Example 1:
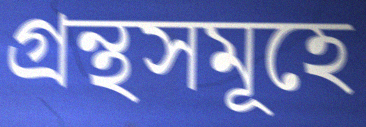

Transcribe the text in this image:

গ্ৰন্থসমূহে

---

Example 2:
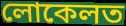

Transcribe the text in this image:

লোকেলত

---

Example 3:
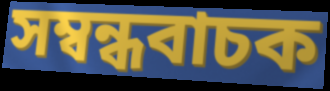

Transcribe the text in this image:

সম্বন্ধবাচক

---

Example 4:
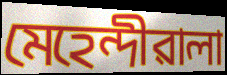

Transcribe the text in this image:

মেহেন্দীৱালা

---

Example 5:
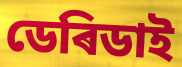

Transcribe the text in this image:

ডেৰিডাই